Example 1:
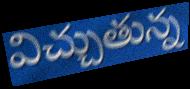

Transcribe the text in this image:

విచ్చుతున్న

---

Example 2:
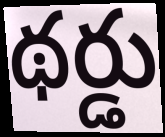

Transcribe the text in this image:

థర్డు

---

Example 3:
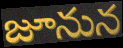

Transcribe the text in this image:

జూనున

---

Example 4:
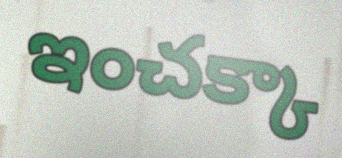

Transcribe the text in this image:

ఇంచక్కా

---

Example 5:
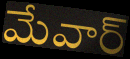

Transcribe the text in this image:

మేవార్